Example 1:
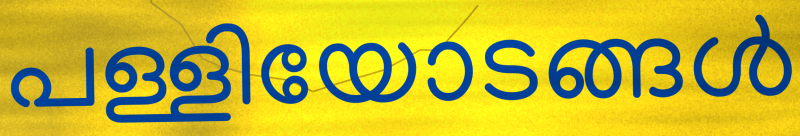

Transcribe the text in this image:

പള്ളിയോടങ്ങൾ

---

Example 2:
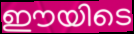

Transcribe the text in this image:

ഈയിടെ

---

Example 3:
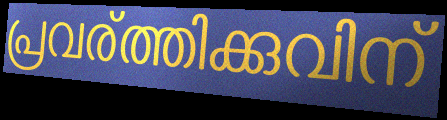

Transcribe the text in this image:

പ്രവര്ത്തിക്കുവിന്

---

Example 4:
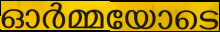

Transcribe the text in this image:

ഓർമ്മയോടെ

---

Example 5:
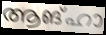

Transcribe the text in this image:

ആങ്ഹാ